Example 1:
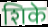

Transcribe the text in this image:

शिके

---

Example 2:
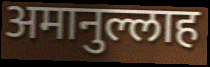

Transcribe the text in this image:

अमानुल्लाह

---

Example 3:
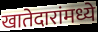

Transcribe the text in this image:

खातेदारांमध्ये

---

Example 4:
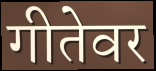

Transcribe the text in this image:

गीतेवर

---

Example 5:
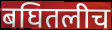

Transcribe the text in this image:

बघितलीच